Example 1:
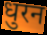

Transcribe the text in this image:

धुरन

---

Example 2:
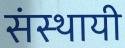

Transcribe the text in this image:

संस्थायी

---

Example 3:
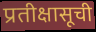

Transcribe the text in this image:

प्रतीक्षासूची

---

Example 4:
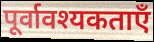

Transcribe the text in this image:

पूर्वावश्यकताएँ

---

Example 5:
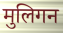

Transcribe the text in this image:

मुलिगन